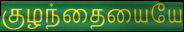
குழந்தையையே